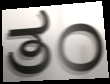
ತಂ